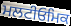
ਮਲਟੀਓਮਿਕ